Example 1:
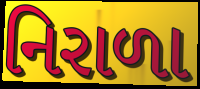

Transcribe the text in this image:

નિરાળા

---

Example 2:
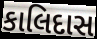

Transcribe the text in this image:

કાલિદાસ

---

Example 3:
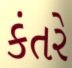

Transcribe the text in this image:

કંતરે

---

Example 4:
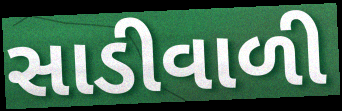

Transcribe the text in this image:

સાડીવાળી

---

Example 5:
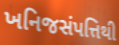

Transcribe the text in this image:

ખનિજસંપત્તિથી